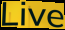
Live